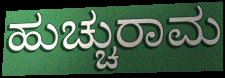
ಹುಚ್ಚುರಾಮ